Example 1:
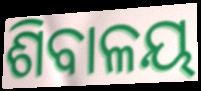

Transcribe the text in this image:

ଶିବାଳୟ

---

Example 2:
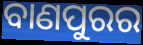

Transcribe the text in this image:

ବାଣପୁରର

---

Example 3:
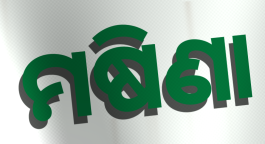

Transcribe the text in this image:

ମଷିଣା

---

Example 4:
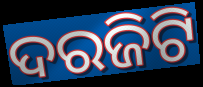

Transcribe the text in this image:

ଦରଜିଟି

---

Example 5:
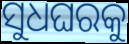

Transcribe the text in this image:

ସୁଧଘରକୁ